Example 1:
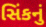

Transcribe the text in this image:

સિંકનું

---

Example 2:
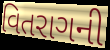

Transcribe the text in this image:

વિતરાગની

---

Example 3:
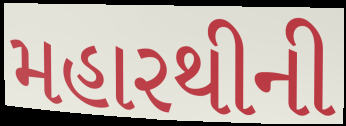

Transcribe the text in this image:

મહારથીની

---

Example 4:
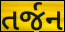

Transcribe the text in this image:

તર્જન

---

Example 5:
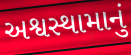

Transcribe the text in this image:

અશ્વસ્થામાનું